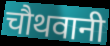
चौथवानी